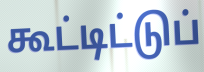
கூட்டிட்டுப்